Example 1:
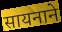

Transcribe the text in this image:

सायनाने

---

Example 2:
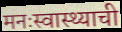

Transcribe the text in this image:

मनःस्वास्थ्याची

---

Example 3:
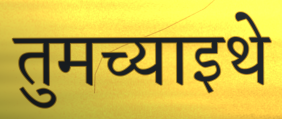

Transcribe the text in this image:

तुमच्याइथे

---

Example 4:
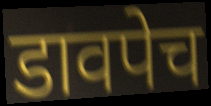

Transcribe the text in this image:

डावपेच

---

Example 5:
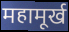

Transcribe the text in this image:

महामूर्ख